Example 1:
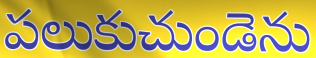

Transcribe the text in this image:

పలుకుచుండెను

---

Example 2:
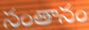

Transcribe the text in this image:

సంతానం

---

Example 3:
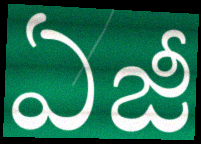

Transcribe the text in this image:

ఏజీ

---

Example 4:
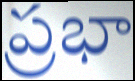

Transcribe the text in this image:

ప్రభా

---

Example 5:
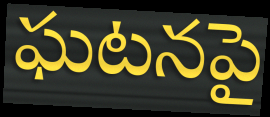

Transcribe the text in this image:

ఘటనపై